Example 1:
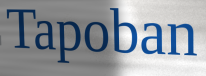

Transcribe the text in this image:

Tapoban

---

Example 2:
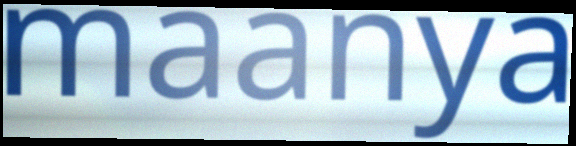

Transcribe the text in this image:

maanya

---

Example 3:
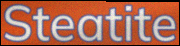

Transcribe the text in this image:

Steatite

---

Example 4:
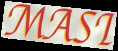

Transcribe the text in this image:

MASI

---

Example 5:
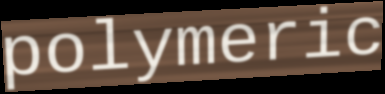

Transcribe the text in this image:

polymeric